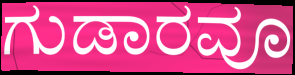
ಗುಡಾರವೂ